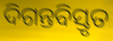
ଦିଗନ୍ତବିସ୍ତୃତ